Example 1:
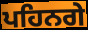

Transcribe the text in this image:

ਪਹਿਨਗੇ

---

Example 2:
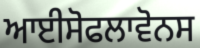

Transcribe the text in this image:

ਆਈਸੋਫਲਾਵੋਨਸ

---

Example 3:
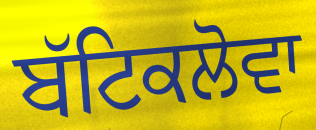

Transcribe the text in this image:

ਬੱਟਿਕਲੋਵਾ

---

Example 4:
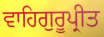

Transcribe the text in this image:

ਵਾਹਿਗੁਰੂਪ੍ਰੀਤ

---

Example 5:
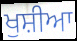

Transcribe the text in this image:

ਖੁਸ਼ੀਆ